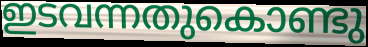
ഇടവന്നതുകൊണ്ടു